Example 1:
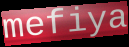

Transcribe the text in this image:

mefiya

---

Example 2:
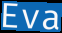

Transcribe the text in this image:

Eva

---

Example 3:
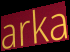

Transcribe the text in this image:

arka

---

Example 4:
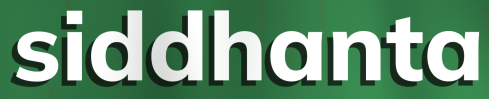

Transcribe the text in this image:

siddhanta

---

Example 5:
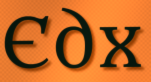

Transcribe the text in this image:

Edx